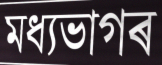
মধ্যভাগৰ